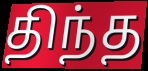
திந்த